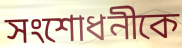
সংশোধনীকে